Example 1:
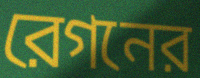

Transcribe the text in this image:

রেগনের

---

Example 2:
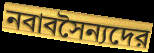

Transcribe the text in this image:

নবাবসৈন্যদের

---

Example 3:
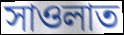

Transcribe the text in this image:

সাওলাত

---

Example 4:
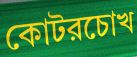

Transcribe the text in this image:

কোটরচোখ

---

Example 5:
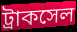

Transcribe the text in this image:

ট্রাকসেল